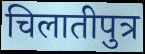
चिलातीपुत्र